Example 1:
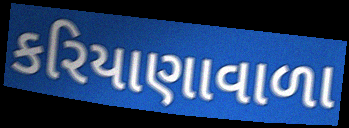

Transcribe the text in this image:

કરિયાણાવાળા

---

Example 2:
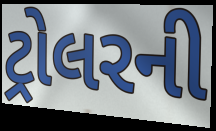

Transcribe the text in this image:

ટ્રોલરની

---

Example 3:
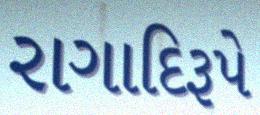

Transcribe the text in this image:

રાગાદિરૂપે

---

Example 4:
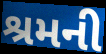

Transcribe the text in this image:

શ્રમની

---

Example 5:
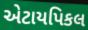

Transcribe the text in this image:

એટાયપિકલ